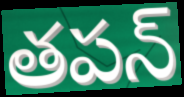
తపన్